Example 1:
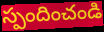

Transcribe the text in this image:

స్పందించండి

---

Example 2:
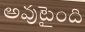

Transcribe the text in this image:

అవుటైంది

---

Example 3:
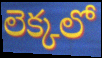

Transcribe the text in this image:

లెక్కలో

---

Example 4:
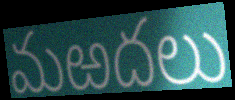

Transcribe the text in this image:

మఱదలు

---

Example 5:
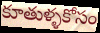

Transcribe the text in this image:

కూతుళ్ళకోసం